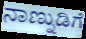
ನಾಣ್ನುಡಿಗೆ